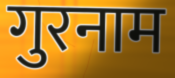
गुरनाम